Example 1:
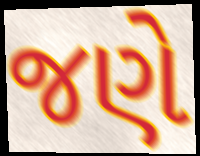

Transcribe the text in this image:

જણે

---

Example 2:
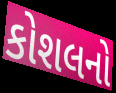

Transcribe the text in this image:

કોશલનો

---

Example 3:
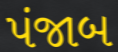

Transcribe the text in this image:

પંજાબ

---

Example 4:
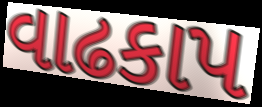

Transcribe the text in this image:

વાઢકાપ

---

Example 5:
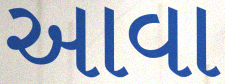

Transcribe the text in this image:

આવા